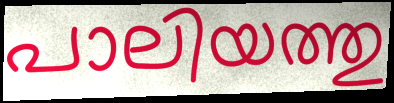
പാലിയത്തു